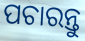
ପଚାରନ୍ତୁ